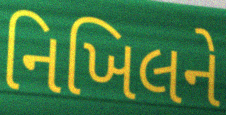
નિખિલને